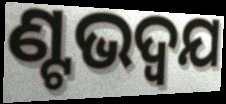
ଣ୍ଟଭଦ୍ଵଯ